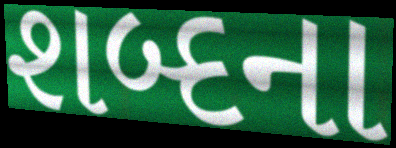
શબ્દના